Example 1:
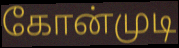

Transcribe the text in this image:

கோன்முடி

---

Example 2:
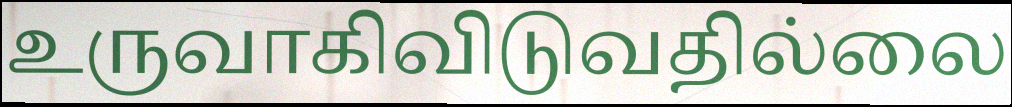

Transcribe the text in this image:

உருவாகிவிடுவதில்லை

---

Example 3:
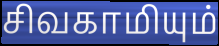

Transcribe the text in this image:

சிவகாமியும்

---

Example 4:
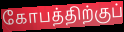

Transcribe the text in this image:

கோபத்திற்குப்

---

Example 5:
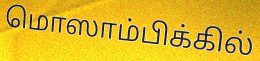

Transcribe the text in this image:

மொஸாம்பிக்கில்